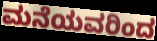
ಮನೆಯವರಿಂದ